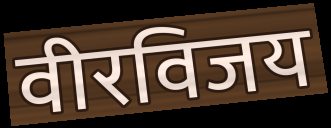
वीरविजय